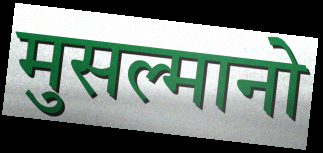
मुसल्मानो